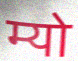
म्यो